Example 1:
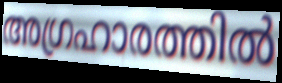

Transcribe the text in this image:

അഗ്രഹാരത്തിൽ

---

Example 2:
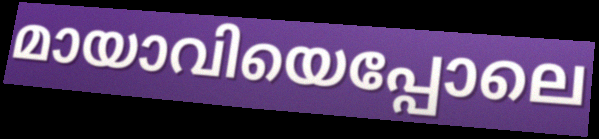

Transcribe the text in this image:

മായാവിയെപ്പോലെ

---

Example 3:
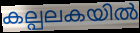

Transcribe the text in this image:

കല്പലകയിൽ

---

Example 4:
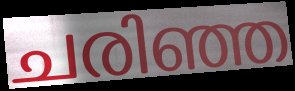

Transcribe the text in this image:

ചരിഞ്ഞ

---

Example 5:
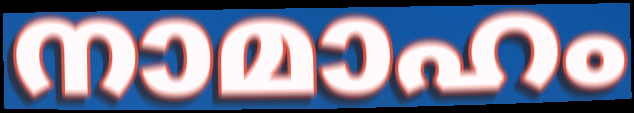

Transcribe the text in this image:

നാമാഹം